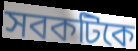
সবকটিকে